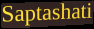
Saptashati